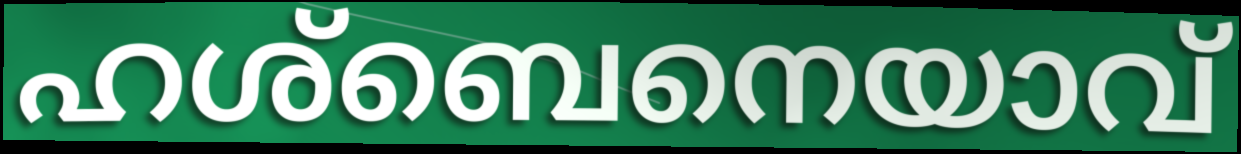
ഹശ്ബെനെയാവ്